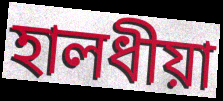
হালধীয়া